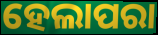
ହେଲାପରା